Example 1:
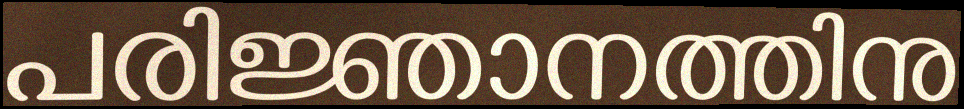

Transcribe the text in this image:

പരിജ്ഞാനത്തിനു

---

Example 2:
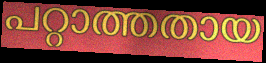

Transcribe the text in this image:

പറ്റാത്തതായ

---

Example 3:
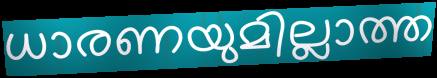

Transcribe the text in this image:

ധാരണയുമില്ലാത്ത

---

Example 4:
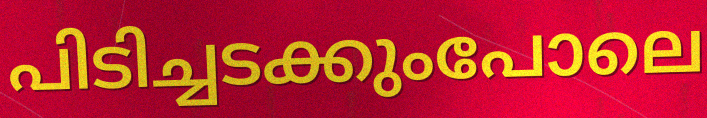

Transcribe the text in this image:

പിടിച്ചടക്കുംപോലെ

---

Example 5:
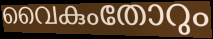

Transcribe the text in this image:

വൈകുംതോറും